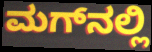
ಮಗ್‌ನಲ್ಲಿ